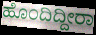
ಹೊಂದಿದ್ದೀರಾ